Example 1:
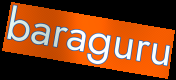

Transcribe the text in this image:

baraguru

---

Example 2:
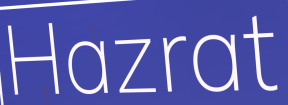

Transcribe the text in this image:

Hazrat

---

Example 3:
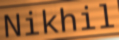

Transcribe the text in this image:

Nikhil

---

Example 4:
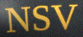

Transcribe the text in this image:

NSV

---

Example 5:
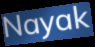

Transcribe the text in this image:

Nayak